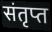
संतृप्त